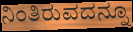
ನಿಂತಿರುವದನ್ನೂ